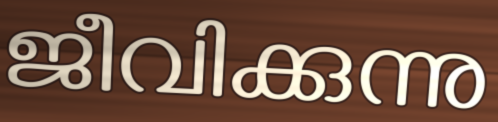
ജീവിക്കുന്നു